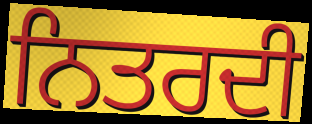
ਨਿਤਰਦੀ